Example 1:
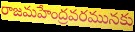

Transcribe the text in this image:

రాజమహేంద్రవరమునకు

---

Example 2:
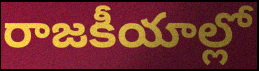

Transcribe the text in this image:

రాజకీయాల్లో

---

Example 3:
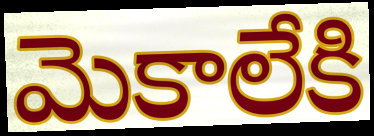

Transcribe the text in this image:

మెకాలేకి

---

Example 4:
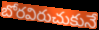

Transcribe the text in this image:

బోరవిరుచుకునే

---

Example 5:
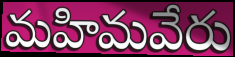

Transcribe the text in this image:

మహిమవేరు